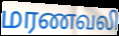
மரணவலி